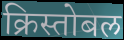
क्रिस्तोबल